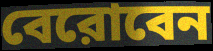
বেরোবেন